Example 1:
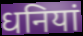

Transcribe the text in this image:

धनियां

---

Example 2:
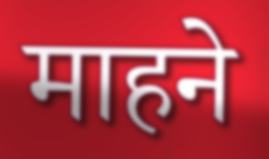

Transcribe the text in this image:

माहने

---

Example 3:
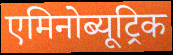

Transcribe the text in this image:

एमिनोब्यूट्रिक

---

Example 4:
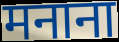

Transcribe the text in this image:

मनाना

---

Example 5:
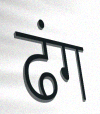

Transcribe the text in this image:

ढंग